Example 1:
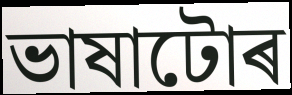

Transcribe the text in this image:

ভাষাটোৰ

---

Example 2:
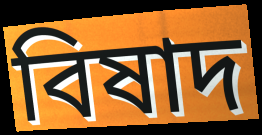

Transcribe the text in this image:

বিষাদ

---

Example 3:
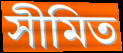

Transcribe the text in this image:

সীমিত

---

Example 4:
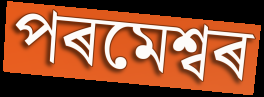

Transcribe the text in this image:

পৰমেশ্বৰ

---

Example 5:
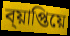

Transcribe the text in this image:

ব্য়াপ্তিয়ে